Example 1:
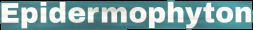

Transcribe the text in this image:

Epidermophyton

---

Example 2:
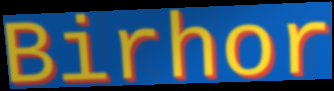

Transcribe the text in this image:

Birhor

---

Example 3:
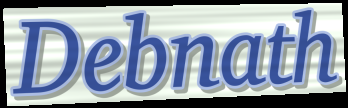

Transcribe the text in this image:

Debnath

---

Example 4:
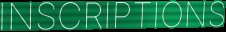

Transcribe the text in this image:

INSCRIPTIONS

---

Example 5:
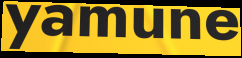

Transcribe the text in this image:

yamune